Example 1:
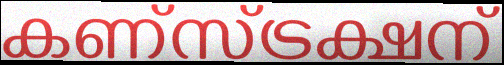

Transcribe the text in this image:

കണ്സ്ട്രക്ഷന്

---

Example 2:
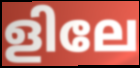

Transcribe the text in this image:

ളിലേ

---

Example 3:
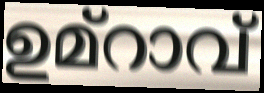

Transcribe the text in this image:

ഉമ്റാവ്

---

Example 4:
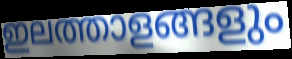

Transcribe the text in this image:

ഇലത്താളങ്ങളും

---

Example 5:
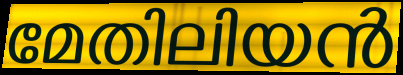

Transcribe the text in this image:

മേതിലിയൻ